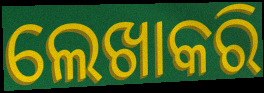
ଲେଖାକରି